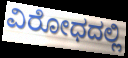
ವಿರೋಧದಲ್ಲಿ